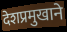
देशप्रमुखाने